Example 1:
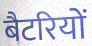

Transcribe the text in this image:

बैटरियों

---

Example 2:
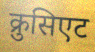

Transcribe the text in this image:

क्रुसिएट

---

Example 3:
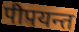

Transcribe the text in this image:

पीपयन्त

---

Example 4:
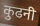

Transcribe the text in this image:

कुढनी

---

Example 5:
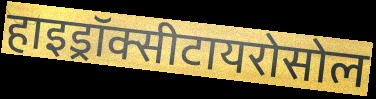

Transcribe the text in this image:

हाइड्रॉक्सीटायरोसोल